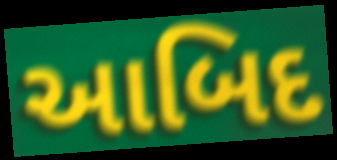
આબિદ